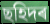
ছহিদৰ